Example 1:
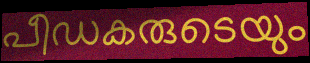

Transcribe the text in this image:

പീഡകരുടെയും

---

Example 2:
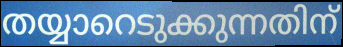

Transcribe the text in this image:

തയ്യാറെടുക്കുന്നതിന്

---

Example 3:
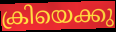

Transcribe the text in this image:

ക്രിയെക്കു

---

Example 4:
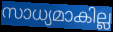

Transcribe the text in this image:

സാധ്യമാകില്ല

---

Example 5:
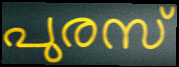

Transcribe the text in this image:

പുരസ്